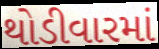
થોડીવારમાં